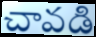
చావడి